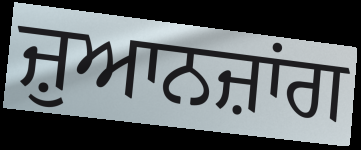
ਜ਼ੁਆਨਜ਼ਾਂਗ